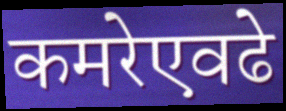
कमरेएवढे